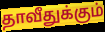
தாவீதுக்கும்